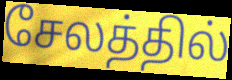
சேலத்தில்